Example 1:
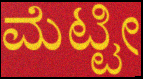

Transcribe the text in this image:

ಮೆಟ್ಟೀ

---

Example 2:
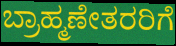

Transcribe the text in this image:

ಬ್ರಾಹ್ಮಣೇತರರಿಗೆ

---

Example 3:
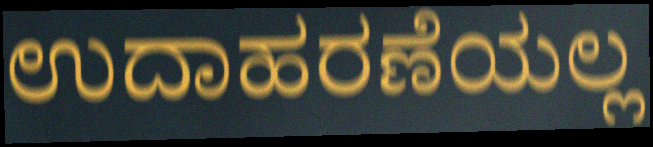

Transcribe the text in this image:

ಉದಾಹರಣೆಯಲ್ಲ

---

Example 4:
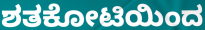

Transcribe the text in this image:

ಶತಕೋಟಿಯಿಂದ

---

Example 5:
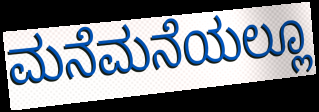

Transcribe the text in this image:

ಮನೆಮನೆಯಲ್ಲೂ